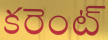
కరెంట్